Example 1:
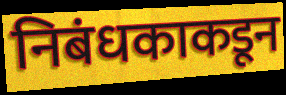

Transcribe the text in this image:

निबंधकाकडून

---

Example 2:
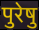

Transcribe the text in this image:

पुरेषु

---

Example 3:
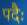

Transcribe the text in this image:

पदैः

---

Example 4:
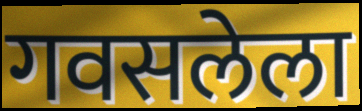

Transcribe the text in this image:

गवसलेला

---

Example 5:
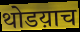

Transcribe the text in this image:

थोडय़ाच